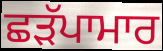
ਛੜੱਪਾਮਾਰ